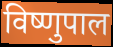
विष्णुपाल